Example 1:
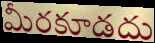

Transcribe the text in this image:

మీరకూడదు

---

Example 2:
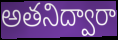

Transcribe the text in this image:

అతనిద్వారా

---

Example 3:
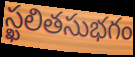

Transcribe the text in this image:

స్ఖలితసుభగం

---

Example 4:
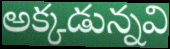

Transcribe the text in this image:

అక్కడున్నవి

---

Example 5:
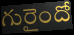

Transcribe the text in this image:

గురైందో